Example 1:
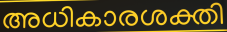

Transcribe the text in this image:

അധികാരശക്തി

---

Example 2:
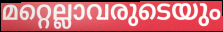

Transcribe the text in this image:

മറ്റെല്ലാവരുടെയും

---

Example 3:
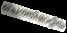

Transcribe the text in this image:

ചെത്തിമാറ്റിയ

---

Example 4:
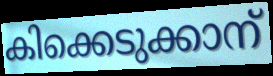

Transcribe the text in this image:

കിക്കെടുക്കാന്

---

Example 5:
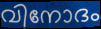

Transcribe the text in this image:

വിനോദം